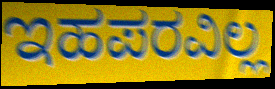
ಇಹಪರವಿಲ್ಲ